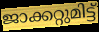
ജാക്കറ്റുമിട്ട്